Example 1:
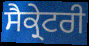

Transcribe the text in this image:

ਸੈਕ੍ਰੇਟਰੀ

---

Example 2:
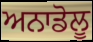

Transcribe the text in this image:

ਅਨਾਡੋਲੂ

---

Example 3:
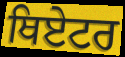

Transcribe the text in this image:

ਥਿਏਟਰ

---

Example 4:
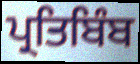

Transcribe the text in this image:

ਪ੍ਰਤਿਬਿੰਬ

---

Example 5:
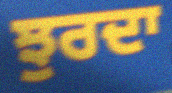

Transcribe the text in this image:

ਝੁਰਦਾ